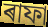
ৰাফা